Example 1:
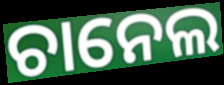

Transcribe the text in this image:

ଚାନେଲ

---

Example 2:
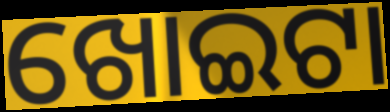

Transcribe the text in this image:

ଖୋଇଟା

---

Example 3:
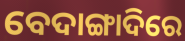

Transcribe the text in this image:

ବେଦାଙ୍ଗାଦିରେ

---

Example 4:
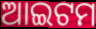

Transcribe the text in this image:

ଆଇଟମ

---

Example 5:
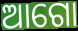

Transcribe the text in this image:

ଆଗୋ